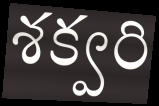
శక్వరి